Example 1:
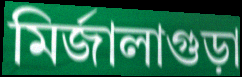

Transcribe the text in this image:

মিৰ্জালাগুড়া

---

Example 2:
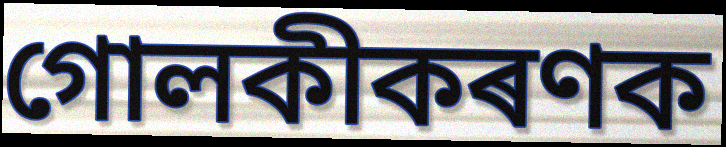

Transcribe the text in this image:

গোলকীকৰণক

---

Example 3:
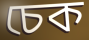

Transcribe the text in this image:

চেক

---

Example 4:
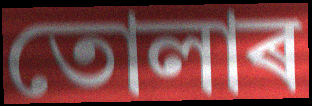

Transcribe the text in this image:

তোলাৰ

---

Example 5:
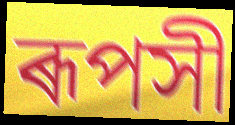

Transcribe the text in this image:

ৰূপসী